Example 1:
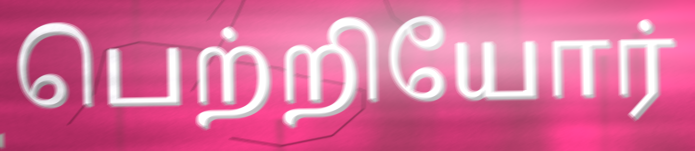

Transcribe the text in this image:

பெற்றியோர்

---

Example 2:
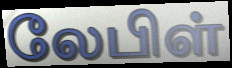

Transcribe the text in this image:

லேபிள்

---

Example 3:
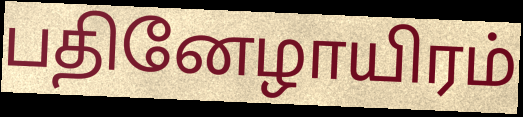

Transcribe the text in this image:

பதினேழாயிரம்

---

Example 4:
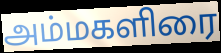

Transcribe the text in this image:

அம்மகளிரை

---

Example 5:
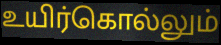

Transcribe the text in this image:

உயிர்கொல்லும்